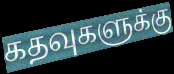
கதவுகளுக்கு